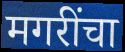
मगरींचा